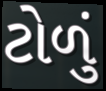
ટોળું